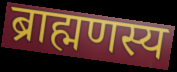
ब्राह्मणस्य